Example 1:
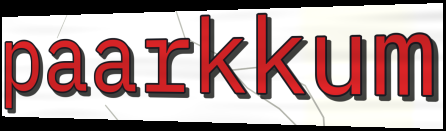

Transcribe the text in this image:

paarkkum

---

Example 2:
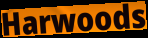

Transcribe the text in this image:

Harwoods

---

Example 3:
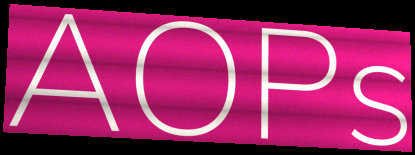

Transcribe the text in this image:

AOPs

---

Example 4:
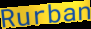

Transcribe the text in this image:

Rurban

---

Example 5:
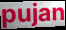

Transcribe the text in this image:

pujan